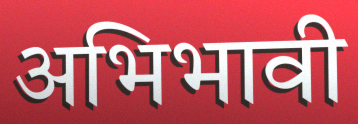
अभिभावी